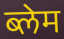
ब्लेम